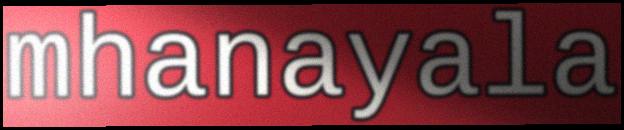
mhanayala